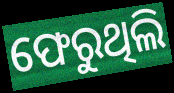
ଫେରୁଥିଲି